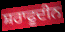
ਸ਼ਰਾਫੂਦੀਨ